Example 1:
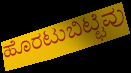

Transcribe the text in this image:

ಹೊರಟುಬಿಟ್ಟೆವು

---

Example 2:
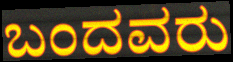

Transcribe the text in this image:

ಬಂದವರು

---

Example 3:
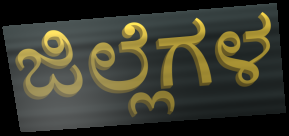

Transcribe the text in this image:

ಜಿಲ್ಲೆಗಳ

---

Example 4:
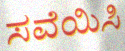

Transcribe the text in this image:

ಸವೆಯಿಸಿ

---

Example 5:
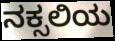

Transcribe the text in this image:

ನಕ್ಸಲಿಯ